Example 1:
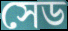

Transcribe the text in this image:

সেড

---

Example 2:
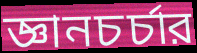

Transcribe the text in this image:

জ্ঞানচর্চার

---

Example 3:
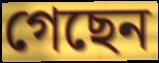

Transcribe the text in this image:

গেছেন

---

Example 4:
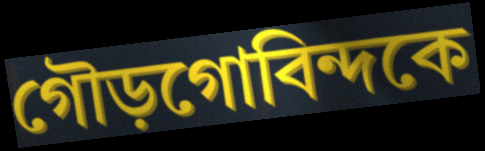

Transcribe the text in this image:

গৌড়গোবিন্দকে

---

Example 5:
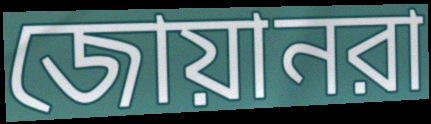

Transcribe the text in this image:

জোয়ানরা